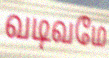
வடிவமே